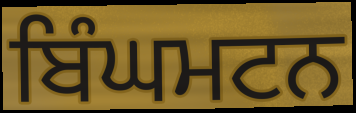
ਬਿੰਘਮਟਨ